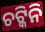
ଚଟ୍କିନି